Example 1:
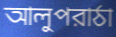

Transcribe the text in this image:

আলুপরাঠা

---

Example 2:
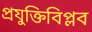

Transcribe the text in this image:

প্রযুক্তিবিপ্লব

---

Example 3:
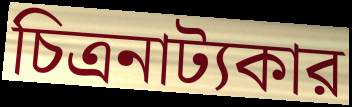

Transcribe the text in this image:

চিত্রনাট্যকার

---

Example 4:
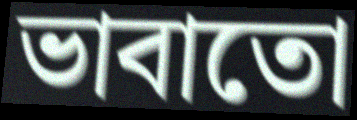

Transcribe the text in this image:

ভাবাতো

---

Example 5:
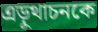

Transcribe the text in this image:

এড়ুথাচনকে